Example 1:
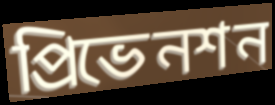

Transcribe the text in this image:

প্রিভেনশন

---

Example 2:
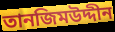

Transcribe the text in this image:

তানজিমউদ্দীন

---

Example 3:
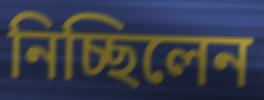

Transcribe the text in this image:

নিচ্ছিলেন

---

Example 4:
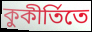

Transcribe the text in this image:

কুকীর্তিতে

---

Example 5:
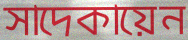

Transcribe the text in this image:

সাদেকায়েন